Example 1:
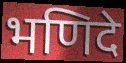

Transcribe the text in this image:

भणिदे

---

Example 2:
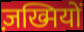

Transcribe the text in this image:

ज़ख्मियों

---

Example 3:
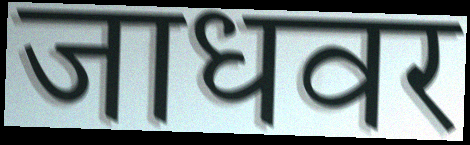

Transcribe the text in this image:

जाधवर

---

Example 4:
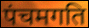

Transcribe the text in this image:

पंचमगति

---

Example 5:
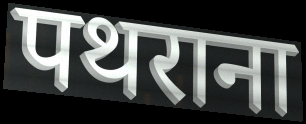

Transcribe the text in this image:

पथराना